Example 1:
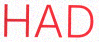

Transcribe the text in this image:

HAD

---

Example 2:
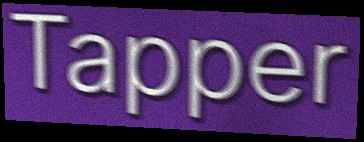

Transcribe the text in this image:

Tapper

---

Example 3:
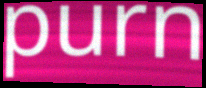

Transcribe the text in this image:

purn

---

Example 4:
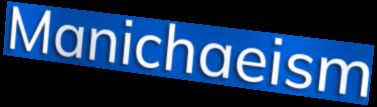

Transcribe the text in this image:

Manichaeism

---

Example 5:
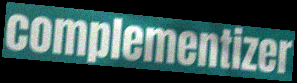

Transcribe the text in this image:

complementizer